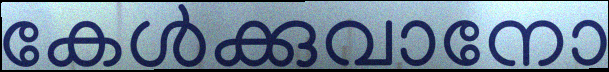
കേൾക്കുവാനോ